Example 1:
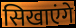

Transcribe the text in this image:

सिखाएंगे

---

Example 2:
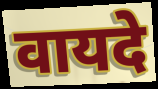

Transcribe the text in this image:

वायदे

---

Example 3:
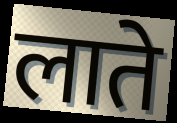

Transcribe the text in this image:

लाते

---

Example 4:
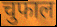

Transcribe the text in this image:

चुफाल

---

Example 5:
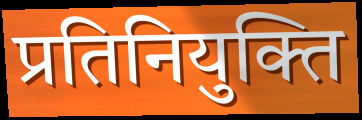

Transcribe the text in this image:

प्रतिनियुक्ति